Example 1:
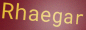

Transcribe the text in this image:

Rhaegar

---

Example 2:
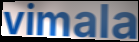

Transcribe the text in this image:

vimala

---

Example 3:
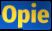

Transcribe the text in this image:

Opie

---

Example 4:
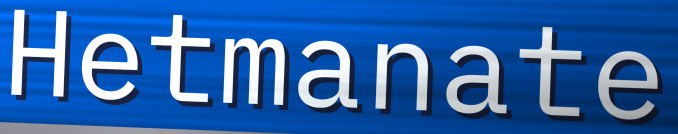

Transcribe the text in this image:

Hetmanate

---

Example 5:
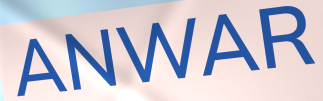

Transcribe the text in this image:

ANWAR